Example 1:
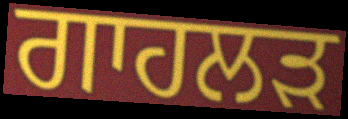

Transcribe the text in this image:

ਗਾਹਲੜ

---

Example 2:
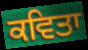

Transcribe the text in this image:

ਕਵਿਤਾ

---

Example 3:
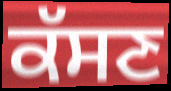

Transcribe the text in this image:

ਕੱਸਣ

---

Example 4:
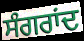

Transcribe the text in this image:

ਸੰਗਰਾਂਦ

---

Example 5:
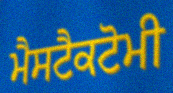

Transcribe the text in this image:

ਮੈਸਟੈਕਟੋਮੀ